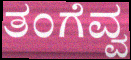
ತಂಗೆವ್ವ